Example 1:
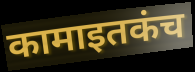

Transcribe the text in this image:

कामाइतकंच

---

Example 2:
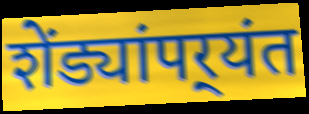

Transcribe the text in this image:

शेंड्यांपर्यंत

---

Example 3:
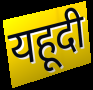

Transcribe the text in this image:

यहूदी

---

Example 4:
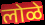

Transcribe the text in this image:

लोळे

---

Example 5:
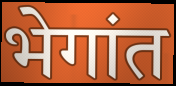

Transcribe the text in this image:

भेगांत